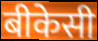
बीकेसी